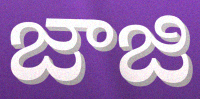
జాజి